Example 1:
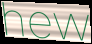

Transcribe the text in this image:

hew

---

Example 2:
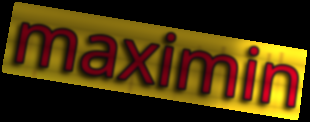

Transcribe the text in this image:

maximin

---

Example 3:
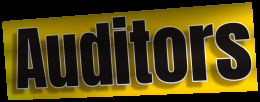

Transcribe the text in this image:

Auditors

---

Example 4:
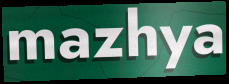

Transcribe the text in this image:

mazhya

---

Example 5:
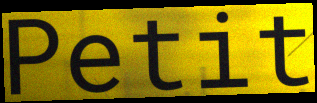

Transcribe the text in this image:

Petit